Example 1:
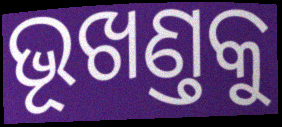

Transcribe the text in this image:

ଭୂଖଣ୍ତକୁ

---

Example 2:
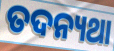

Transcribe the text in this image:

ତଦନ୍ୟଥା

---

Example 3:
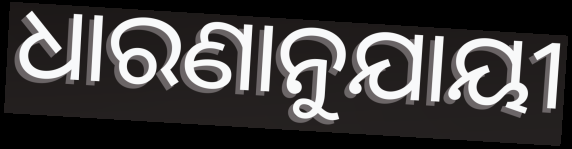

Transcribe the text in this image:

ଧାରଣାନୁଯାୟୀ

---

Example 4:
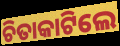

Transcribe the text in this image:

ଚିତାକାଟିଲେ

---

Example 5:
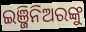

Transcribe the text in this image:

ଇଞ୍ଜିନିଅରଙ୍କୁ